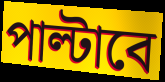
পাল্টাবে